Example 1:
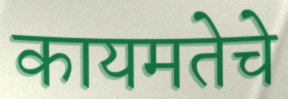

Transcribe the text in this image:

कायमतेचे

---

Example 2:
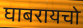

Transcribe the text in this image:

घाबरायचो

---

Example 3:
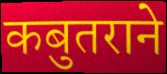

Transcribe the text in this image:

कबुतराने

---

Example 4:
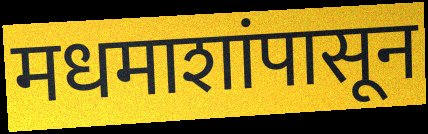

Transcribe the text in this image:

मधमाशांपासून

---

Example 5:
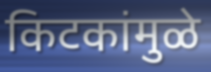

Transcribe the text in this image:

किटकांमुळे